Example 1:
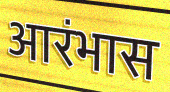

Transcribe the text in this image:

आरंभास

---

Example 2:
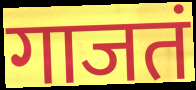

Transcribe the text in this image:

गाजतं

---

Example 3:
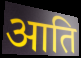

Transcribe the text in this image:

आति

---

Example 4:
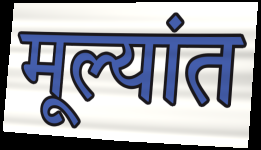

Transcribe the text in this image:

मूल्यांत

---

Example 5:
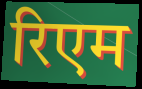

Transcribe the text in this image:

रिएम